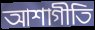
আশাগীতি